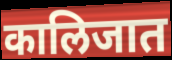
कालिजात